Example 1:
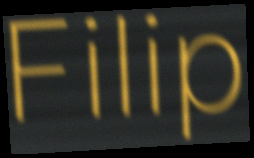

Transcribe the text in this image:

Filip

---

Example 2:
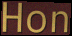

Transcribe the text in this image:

Hon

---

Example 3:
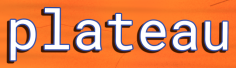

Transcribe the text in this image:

plateau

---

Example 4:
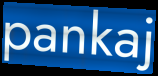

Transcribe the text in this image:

pankaj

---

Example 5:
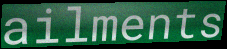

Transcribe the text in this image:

ailments